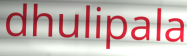
dhulipala